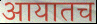
आयातच